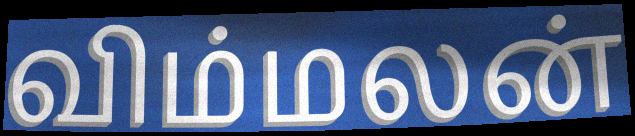
விம்மலன்